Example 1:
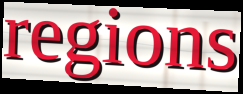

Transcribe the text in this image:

regions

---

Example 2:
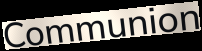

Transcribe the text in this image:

Communion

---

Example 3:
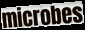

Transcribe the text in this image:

microbes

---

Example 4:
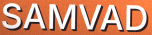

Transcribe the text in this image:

SAMVAD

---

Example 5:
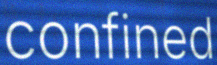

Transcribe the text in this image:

confined